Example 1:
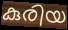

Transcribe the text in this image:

കുരിയ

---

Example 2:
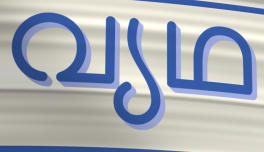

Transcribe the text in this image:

വ്യഥ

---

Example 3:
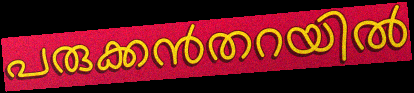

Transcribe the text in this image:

പരുക്കൻതറയിൽ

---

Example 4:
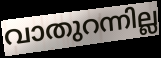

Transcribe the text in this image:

വാതുറന്നില്ല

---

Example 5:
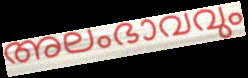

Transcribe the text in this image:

അലംഭാവവും